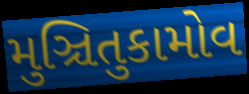
મુઞ્ચિતુકામોવ